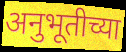
अनुभूतीच्या